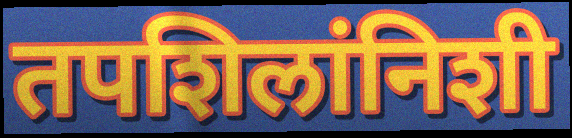
तपशिलांनिशी